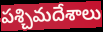
పశ్చిమదేశాలు